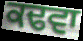
ਕਢਵਾ